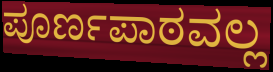
ಪೂರ್ಣಪಾಠವಲ್ಲ